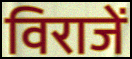
विराजें